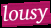
lousy